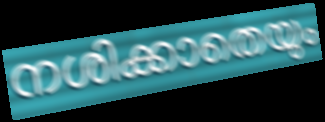
നശിക്കാതെയും